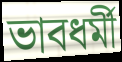
ভাবধর্মী